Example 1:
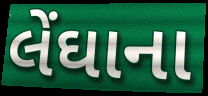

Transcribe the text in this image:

લેંઘાના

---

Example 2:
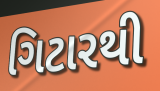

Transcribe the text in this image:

ગિટારથી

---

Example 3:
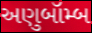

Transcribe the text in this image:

અણુબૉમ્બ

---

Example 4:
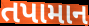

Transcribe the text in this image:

તપામાન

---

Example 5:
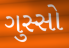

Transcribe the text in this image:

ગુસ્સો